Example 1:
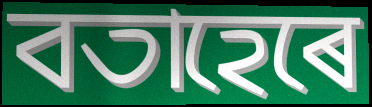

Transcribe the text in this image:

বতাহেৰে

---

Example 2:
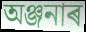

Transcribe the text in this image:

অঞ্জনাৰ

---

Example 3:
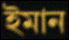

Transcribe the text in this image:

ইমান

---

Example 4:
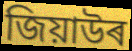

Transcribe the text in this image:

জিয়াউৰ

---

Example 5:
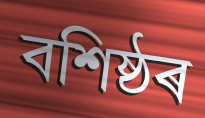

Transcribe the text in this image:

বশিষ্ঠৰ